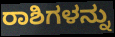
ರಾಶಿಗಳನ್ನು